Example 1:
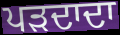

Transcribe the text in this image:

ਪੜਦਾਦਾ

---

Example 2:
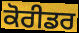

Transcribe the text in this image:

ਕੋਰੀਡਰ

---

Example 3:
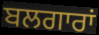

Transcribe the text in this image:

ਬਲਗਾਰਾਂ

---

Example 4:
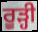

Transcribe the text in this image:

ਰੂੜ੍ਹੀ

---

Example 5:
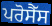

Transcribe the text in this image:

ਪਰੋਸੈੱਸ